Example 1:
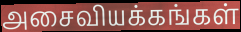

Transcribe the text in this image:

அசைவியக்கங்கள்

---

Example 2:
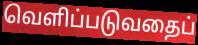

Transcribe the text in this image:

வெளிப்படுவதைப்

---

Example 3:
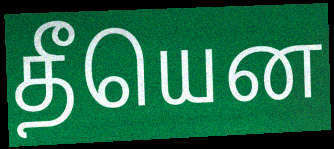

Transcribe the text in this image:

தீயென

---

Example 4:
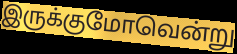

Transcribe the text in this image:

இருக்குமோவென்று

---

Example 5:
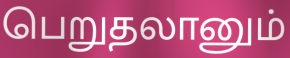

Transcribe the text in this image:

பெறுதலானும்